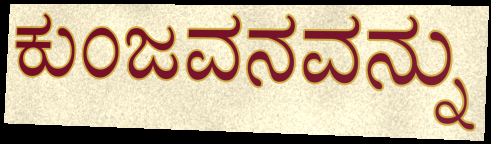
ಕುಂಜವನವನ್ನು